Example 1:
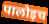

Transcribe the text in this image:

पालोइच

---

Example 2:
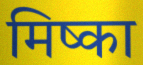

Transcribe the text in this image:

मिष्का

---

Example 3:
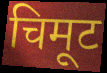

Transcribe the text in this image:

चिमूट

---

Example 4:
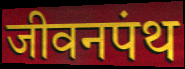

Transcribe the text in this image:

जीवनपंथ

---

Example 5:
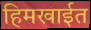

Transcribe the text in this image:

हिमखाईत